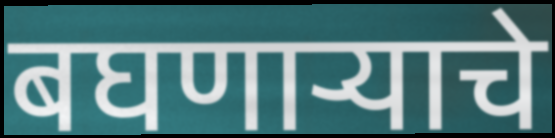
बघणाऱ्याचे